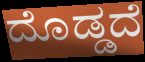
ದೊಡ್ಡದೆ